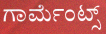
ಗಾರ್ಮೆಂಟ್ಸ್